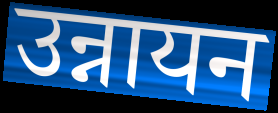
उन्नायन